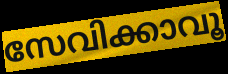
സേവിക്കാവൂ